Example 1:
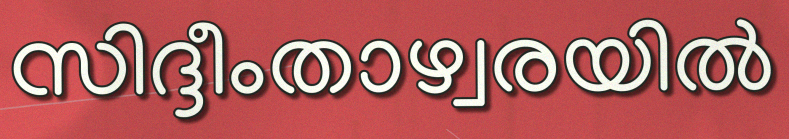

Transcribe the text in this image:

സിദ്ദീംതാഴ്വരയിൽ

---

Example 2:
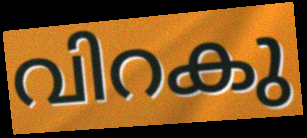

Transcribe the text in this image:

വിറകു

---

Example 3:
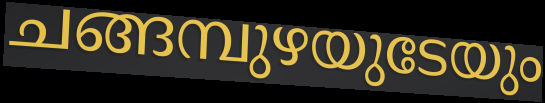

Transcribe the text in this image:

ചങ്ങമ്പുഴയുടേയും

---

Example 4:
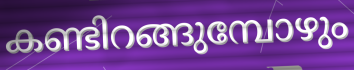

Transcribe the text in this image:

കണ്ടിറങ്ങുമ്പോഴും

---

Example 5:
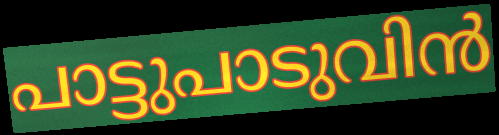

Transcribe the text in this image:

പാട്ടുപാടുവിൻ